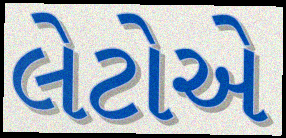
લેટોએ